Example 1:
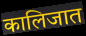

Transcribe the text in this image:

कालिजात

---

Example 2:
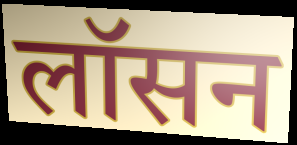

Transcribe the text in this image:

लॉसन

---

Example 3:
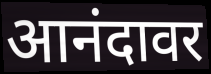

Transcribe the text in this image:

आनंदावर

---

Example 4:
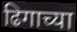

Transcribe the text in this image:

ढिगाच्या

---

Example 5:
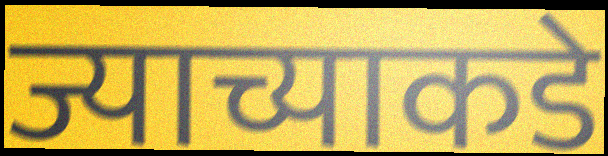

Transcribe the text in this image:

ज्याच्याकडे